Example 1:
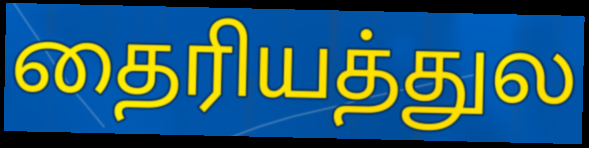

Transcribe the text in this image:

தைரியத்துல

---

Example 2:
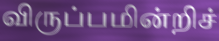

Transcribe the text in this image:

விருப்பமின்றிச்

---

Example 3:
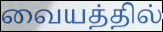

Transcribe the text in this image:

வையத்தில்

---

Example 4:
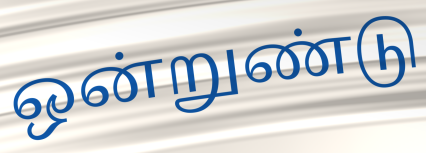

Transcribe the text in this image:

ஒன்றுண்டு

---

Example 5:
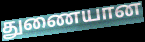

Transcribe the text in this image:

துணையான